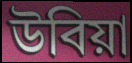
উবিয়া